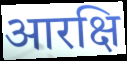
आरक्षि